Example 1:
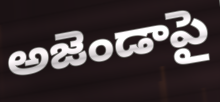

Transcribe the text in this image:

అజెండాపై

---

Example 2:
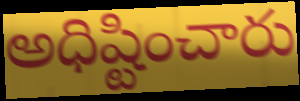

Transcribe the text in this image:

అధిష్టించారు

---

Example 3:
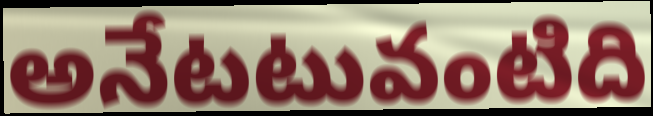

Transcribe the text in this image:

అనేటటువంటిది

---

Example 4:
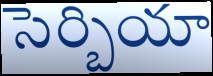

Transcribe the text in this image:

సెర్బియా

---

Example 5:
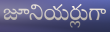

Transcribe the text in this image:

జూనియర్లుగా